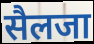
सैलजा